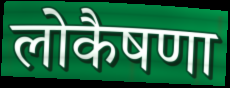
लोकैषणा